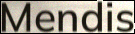
Mendis